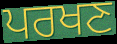
ਪਰਖਣ